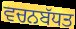
ਵਚਨਬੱਧਤ